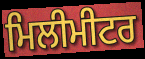
ਮਿਲੀਮੀਟਰ